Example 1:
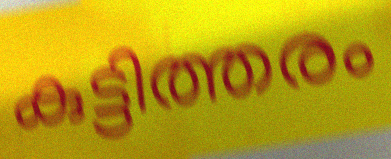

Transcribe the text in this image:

കുട്ടിത്തരം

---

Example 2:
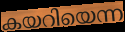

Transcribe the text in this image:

കയറിയെന്ന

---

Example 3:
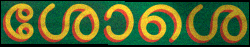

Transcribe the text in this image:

ശോശെ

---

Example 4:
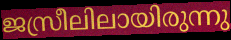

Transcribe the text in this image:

ജസ്രീലിലായിരുന്നു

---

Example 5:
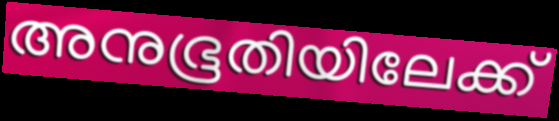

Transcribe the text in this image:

അനുഭൂതിയിലേക്ക്